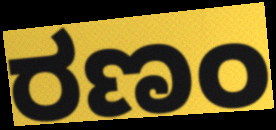
ರಣಂ